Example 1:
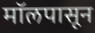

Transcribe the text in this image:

मॉलपासून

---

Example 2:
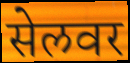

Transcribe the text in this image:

सेलवर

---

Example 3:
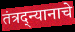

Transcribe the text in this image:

तंत्रद्न्यानाचे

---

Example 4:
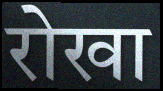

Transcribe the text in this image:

रोखा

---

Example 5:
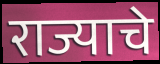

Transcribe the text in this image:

राज्याचे